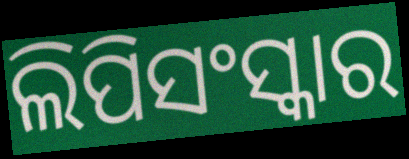
ଲିପିସଂସ୍କାର